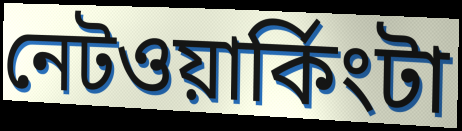
নেটওয়ার্কিংটা